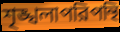
শৃঙ্খলাপরিপন্থি